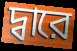
দ্বারে